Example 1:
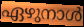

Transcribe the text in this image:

ഏഴുനാൾ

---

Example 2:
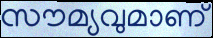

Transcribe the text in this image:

സൗമ്യവുമാണ്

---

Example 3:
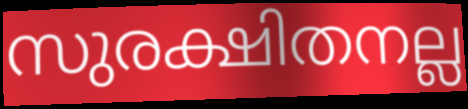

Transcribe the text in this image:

സുരക്ഷിതനല്ല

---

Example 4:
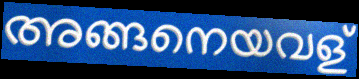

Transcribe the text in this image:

അങ്ങനെയവള്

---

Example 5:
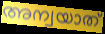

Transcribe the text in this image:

അന്വയാത്